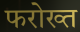
फरोख्‍त